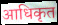
आधिकृत